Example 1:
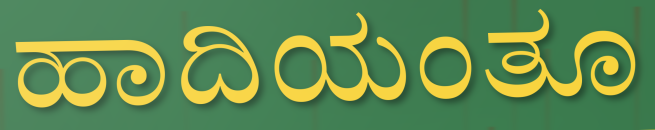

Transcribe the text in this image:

ಹಾದಿಯಂತೂ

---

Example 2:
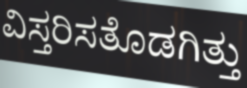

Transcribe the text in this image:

ವಿಸ್ತರಿಸತೊಡಗಿತ್ತು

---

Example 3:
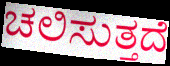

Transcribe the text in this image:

ಚಲಿಸುತ್ತದೆ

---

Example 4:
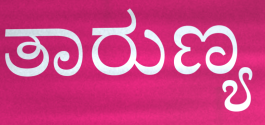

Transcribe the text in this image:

ತಾರುಣ್ಯ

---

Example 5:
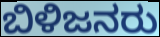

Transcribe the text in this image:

ಬಿಳಿಜನರು